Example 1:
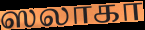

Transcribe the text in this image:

ஸலாகா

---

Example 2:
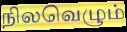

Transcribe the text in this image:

நிலவெழும்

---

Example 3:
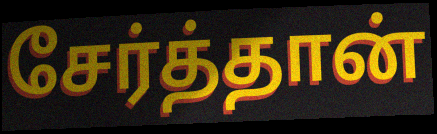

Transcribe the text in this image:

சேர்த்தான்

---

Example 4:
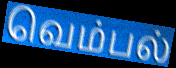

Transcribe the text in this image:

வெம்பல்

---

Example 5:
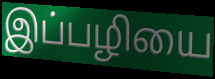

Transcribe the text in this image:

இப்பழியை